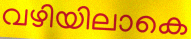
വഴിയിലാകെ